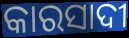
କାରସାଦୀ